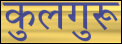
कुलगुरू